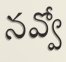
నవ్వో